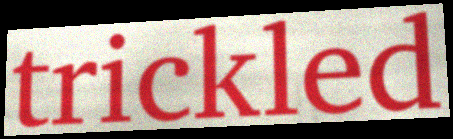
trickled